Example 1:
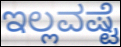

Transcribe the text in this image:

ಇಲ್ಲವಷ್ಟೆ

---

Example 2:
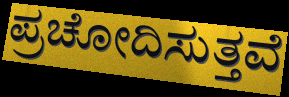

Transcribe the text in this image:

ಪ್ರಚೋದಿಸುತ್ತವೆ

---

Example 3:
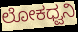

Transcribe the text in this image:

ಲೋಕಧ್ವನಿ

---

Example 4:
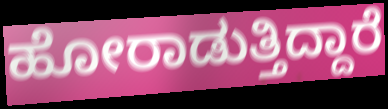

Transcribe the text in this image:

ಹೋರಾಡುತ್ತಿದ್ದಾರೆ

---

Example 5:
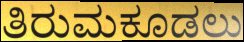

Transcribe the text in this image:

ತಿರುಮಕೂಡಲು